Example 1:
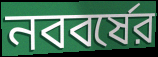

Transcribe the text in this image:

নববর্ষের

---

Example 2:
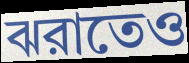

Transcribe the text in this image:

ঝরাতেও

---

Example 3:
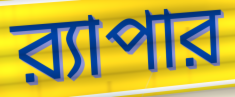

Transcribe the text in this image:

র‍্যাপার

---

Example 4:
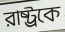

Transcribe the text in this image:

রাষ্ট্রকে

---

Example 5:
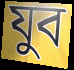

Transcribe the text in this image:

যুব